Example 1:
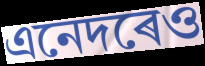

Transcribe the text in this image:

এনেদৰেও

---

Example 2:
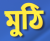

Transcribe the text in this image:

মুঠি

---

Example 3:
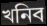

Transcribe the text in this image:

খনিব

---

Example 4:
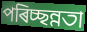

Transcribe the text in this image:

পৰিচ্ছন্নতা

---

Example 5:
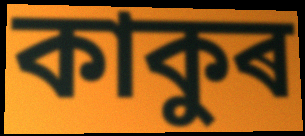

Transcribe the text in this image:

কাকুৰ